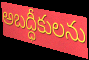
అబద్ధీకులను